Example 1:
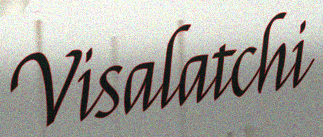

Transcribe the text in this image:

Visalatchi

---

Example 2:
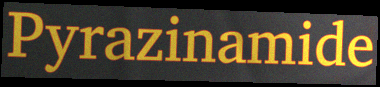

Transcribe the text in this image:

Pyrazinamide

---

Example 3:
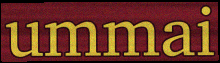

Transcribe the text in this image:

ummai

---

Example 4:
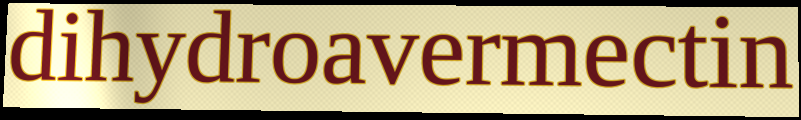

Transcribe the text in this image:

dihydroavermectin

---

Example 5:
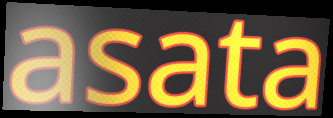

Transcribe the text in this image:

asata